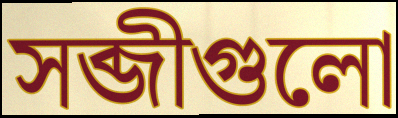
সব্জীগুলো